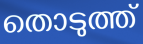
തൊടുത്ത്